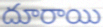
దూరాయి